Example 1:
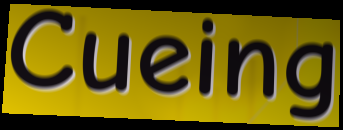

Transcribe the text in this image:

Cueing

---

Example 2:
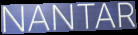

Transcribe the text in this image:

NANTAR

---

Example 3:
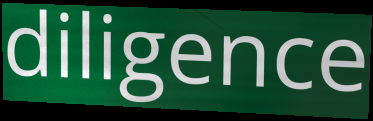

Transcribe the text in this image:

diligence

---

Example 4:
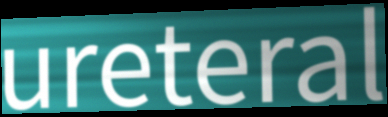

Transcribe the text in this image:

ureteral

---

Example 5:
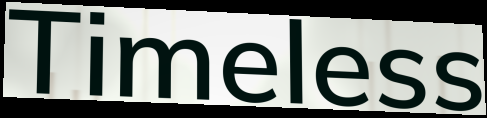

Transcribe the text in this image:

Timeless